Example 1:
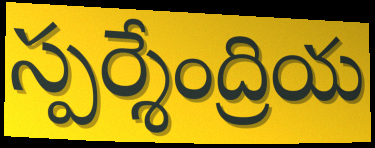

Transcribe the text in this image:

స్పర్శేంద్రియ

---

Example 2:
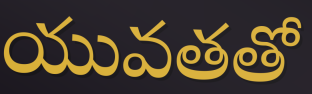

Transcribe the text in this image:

యువతతో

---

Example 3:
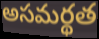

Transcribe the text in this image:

అసమర్థత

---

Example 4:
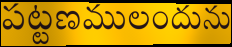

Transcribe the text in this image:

పట్టణములందును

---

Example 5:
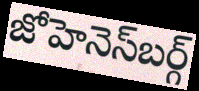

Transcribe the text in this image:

జోహెనెస్‍బర్గ్